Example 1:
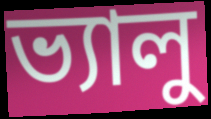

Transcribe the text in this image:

ভ্যালু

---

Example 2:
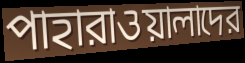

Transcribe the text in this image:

পাহারাওয়ালাদের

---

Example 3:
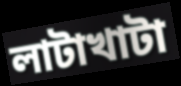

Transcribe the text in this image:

লাটাখাটা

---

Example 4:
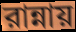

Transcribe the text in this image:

রান্নায়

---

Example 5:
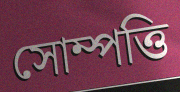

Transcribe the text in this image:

সোম্পত্তি